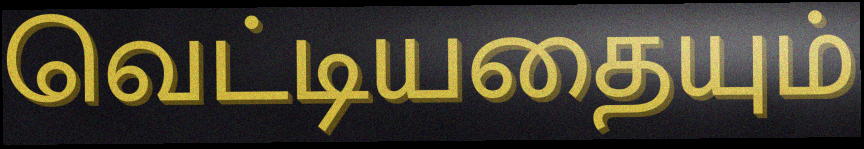
வெட்டியதையும்